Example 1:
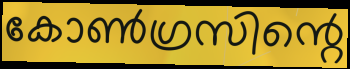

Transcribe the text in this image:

കോൺഗ്രസിന്റെ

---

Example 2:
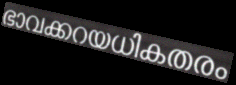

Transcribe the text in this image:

ഭാവക്കറയധികതരം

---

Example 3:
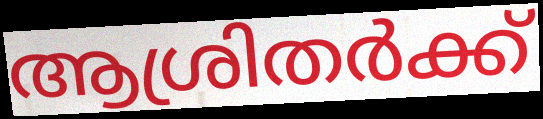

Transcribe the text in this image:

ആശ്രിതർക്ക്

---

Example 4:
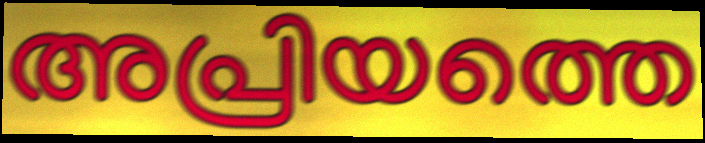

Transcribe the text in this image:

അപ്രിയത്തെ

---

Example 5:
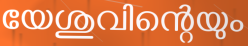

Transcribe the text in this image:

യേശുവിന്റെയും